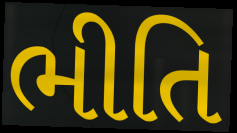
ભીતિ